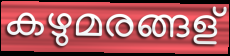
കഴുമരങ്ങള്